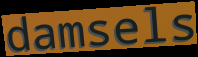
damsels